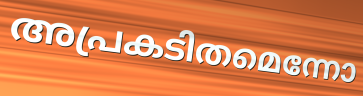
അപ്രകടിതമെന്നോ